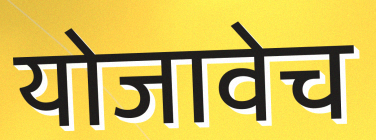
योजावेच